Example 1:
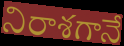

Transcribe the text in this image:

నిరాశగానే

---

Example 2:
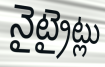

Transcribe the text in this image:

నైట్రైట్లు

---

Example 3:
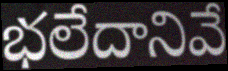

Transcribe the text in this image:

భలేదానివే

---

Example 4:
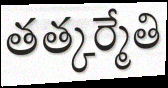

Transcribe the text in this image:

తత్కర్మేతి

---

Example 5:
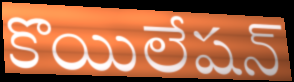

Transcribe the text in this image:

కొయిలేషన్